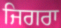
ਜਿਗਰਾ